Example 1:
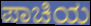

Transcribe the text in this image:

ಪಾಚಿಯ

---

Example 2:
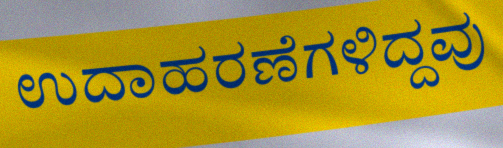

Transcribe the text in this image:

ಉದಾಹರಣೆಗಳಿದ್ದವು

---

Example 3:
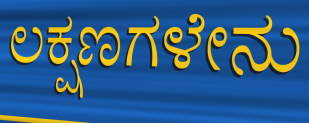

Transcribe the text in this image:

ಲಕ್ಷಣಗಳೇನು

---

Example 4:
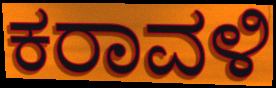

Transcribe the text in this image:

ಕರಾವಳಿ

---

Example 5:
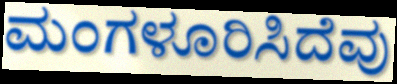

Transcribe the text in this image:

ಮಂಗಳೂರಿಸಿದೆವು